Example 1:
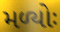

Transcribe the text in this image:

મળ્યોઃ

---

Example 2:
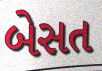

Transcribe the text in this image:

બેસત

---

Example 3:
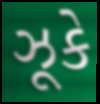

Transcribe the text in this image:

ઝૂકે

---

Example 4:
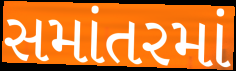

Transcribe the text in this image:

સમાંતરમાં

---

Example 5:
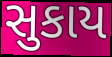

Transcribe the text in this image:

સુકાય